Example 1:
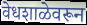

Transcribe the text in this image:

वेधशाळेवरून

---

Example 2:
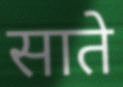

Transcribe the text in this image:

साते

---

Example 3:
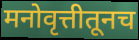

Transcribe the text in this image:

मनोवृत्तीतूनच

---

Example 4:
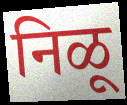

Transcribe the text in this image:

निळू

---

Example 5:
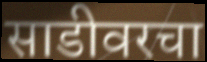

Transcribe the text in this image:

साडीवरचा